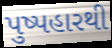
પુષ્પહારથી